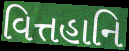
વિત્તહાનિ